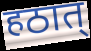
हठात्